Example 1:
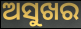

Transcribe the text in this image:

ଅସୁଖର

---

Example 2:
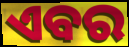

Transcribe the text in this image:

ଏବର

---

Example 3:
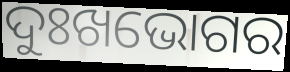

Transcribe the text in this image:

ଦୁଃଖଭୋଗର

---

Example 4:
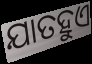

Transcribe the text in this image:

ଯାତହୁଏ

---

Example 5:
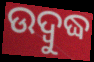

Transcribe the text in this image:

ଉଦ୍ବୁଦ୍ଧ